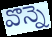
వొన్నె